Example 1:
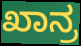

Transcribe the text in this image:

ಖಾನ್ರ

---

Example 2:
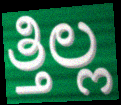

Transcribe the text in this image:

ತ್ತಿಲ್ಲ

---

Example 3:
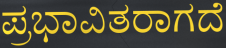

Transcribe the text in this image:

ಪ್ರಭಾವಿತರಾಗದೆ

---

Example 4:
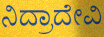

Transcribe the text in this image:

ನಿದ್ರಾದೇವಿ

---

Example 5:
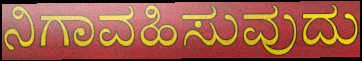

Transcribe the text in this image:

ನಿಗಾವಹಿಸುವುದು